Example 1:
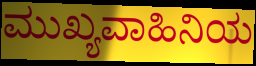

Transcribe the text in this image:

ಮುಖ್ಯವಾಹಿನಿಯ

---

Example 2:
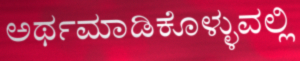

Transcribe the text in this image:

ಅರ್ಥಮಾಡಿಕೊಳ್ಳುವಲ್ಲಿ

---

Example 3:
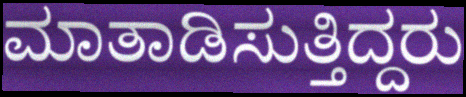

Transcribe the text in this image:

ಮಾತಾಡಿಸುತ್ತಿದ್ದರು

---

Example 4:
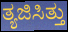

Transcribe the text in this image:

ತ್ಯಜಿಸಿತ್ತು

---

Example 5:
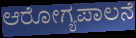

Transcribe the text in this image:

ಆರೋಗ್ಯಪಾಲನೆ